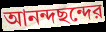
আনন্দছন্দের